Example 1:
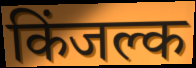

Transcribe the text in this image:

किंजल्क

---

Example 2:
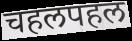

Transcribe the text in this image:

चहलपहल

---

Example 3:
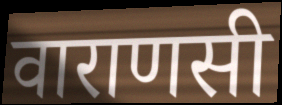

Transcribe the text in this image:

वाराणसी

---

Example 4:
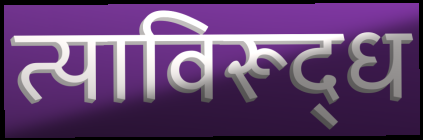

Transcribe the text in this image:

त्याविरूद्ध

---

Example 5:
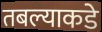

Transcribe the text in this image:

तबल्याकडे